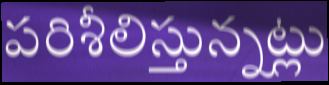
పరిశీలిస్తున్నట్లు